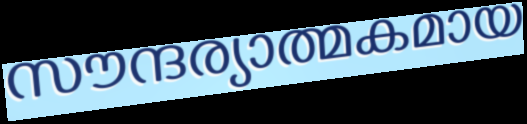
സൗന്ദര്യാത്മകമായ